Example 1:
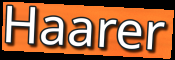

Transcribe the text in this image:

Haarer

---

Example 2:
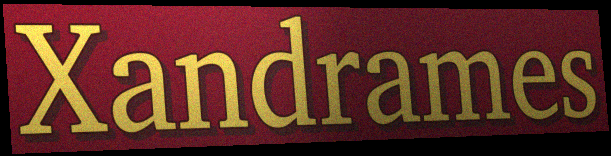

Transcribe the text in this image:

Xandrames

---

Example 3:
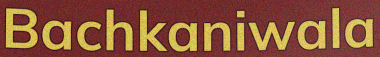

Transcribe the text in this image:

Bachkaniwala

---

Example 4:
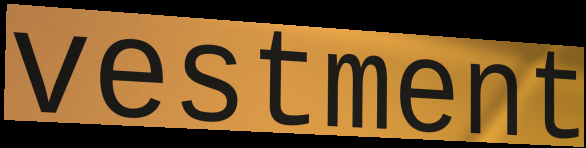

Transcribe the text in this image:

vestment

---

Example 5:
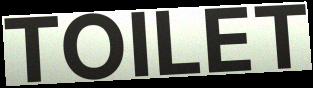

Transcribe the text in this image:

TOILET